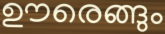
ഊരെങ്ങും